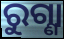
ରୁଗ୍ଣା